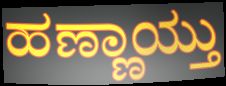
ಹಣ್ಣಾಯ್ತು